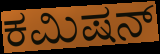
ಕಮಿಷನ್